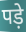
पड़े